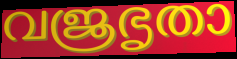
വജ്രഭൃതാ